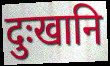
दुःखानि